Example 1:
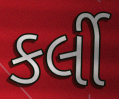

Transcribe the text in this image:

કર્લી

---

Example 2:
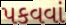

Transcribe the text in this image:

પકવવાં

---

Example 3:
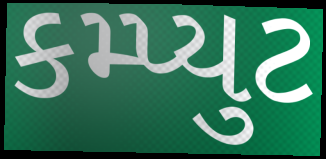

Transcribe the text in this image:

કમ્પ્યુટ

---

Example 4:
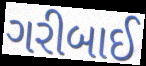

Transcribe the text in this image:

ગરીબાઈ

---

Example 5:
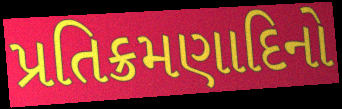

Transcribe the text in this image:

પ્રતિક્રમણાદિનો